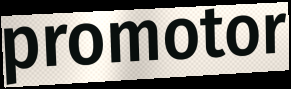
promotor